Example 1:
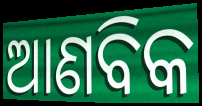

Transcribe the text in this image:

ଆଣବିକ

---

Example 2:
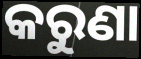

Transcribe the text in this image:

କରୁଣା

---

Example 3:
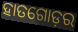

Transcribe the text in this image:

ହାତଗୋଡ଼ର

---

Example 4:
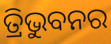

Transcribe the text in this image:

ତ୍ରିଭୁବନର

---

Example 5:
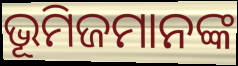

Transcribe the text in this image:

ଭୂମିଜମାନଙ୍କ